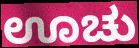
ಊಚು